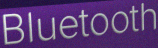
Bluetooth